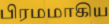
பிரமமாகிய